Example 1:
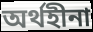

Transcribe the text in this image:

অর্থহীনা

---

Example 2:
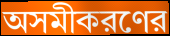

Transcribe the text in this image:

অসমীকরণের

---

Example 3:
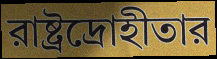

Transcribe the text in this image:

রাষ্ট্রদ্রোহীতার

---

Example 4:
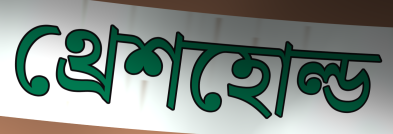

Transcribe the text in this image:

থ্রেশহোল্ড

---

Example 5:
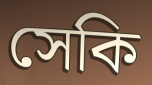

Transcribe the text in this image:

সেকি